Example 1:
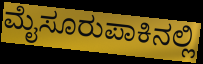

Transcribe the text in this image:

ಮೈಸೂರುಪಾಕಿನಲ್ಲಿ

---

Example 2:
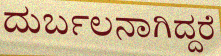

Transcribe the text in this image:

ದುರ್ಬಲನಾಗಿದ್ದರೆ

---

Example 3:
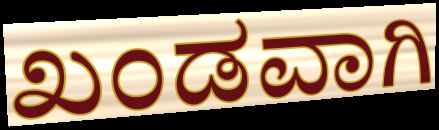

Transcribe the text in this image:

ಖಂಡವಾಗಿ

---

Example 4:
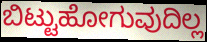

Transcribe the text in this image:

ಬಿಟ್ಟುಹೋಗುವುದಿಲ್ಲ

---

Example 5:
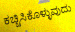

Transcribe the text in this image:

ಕಚ್ಚಿಸಿಕೊಳ್ಳುವುದು